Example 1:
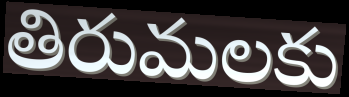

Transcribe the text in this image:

తిరుమలకు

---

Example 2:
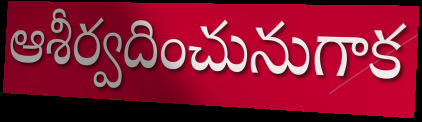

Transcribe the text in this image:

ఆశీర్వదించునుగాక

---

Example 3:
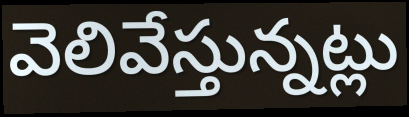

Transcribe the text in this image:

వెలివేస్తున్నట్లు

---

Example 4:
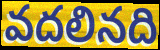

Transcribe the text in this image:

వదలినది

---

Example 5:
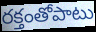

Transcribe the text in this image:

రక్తంతోపాటు